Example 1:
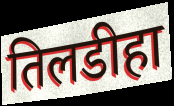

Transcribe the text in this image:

तिलडीहा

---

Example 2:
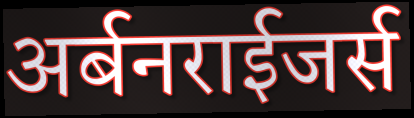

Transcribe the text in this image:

अर्बनराईजर्स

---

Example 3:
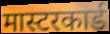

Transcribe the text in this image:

मास्टरकार्ड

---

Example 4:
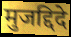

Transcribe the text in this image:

मुजद्दिदे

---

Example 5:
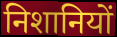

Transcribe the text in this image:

निशानियों